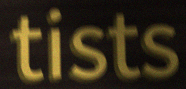
tists